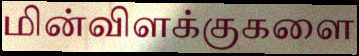
மின்விளக்குகளை